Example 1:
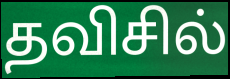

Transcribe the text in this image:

தவிசில்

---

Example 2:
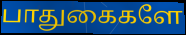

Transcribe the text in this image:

பாதுகைகளே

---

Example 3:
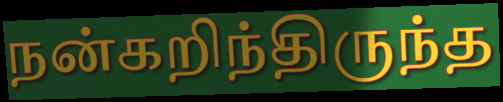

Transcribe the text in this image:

நன்கறிந்திருந்த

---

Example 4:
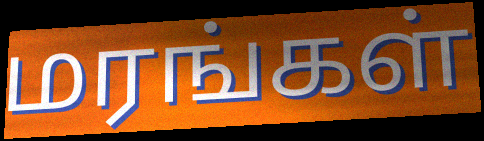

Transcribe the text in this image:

மரங்கள்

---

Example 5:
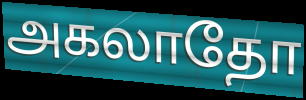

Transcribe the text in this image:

அகலாதோ